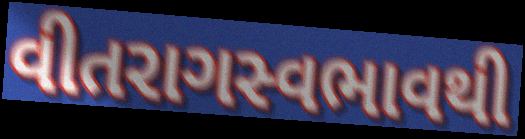
વીતરાગસ્વભાવથી